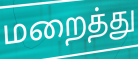
மறைத்து